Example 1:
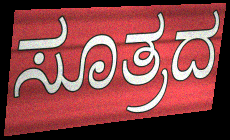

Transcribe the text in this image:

ಸೂತ್ರದ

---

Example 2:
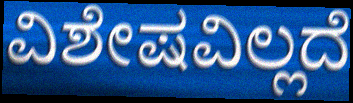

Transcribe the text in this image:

ವಿಶೇಷವಿಲ್ಲದೆ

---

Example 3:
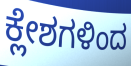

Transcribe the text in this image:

ಕ್ಲೇಶಗಳಿಂದ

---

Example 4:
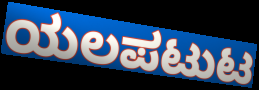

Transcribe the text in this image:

ಯಲಪಟುಟ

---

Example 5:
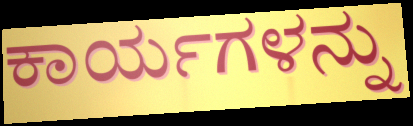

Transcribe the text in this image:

ಕಾರ್ಯಗಳನ್ನು